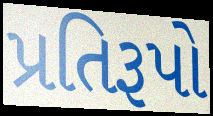
પ્રતિરૂપો